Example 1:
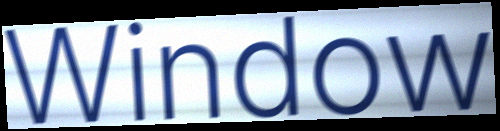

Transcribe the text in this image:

Window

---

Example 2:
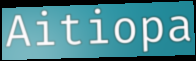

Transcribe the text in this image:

Aitiopa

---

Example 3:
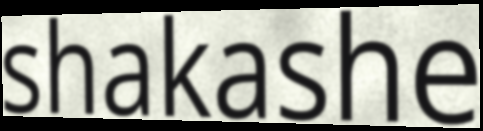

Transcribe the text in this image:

shakashe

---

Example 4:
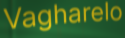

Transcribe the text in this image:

Vagharelo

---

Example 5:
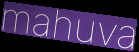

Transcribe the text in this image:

mahuva